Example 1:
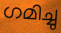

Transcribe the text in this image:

ഗമിച്ചു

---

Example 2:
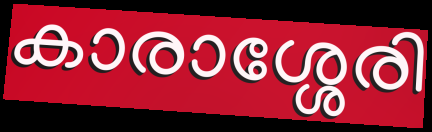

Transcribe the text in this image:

കാരാശ്ശേരി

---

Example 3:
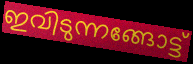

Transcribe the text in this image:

ഇവിടുന്നങ്ങോട്ട്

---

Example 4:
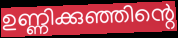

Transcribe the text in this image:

ഉണ്ണിക്കുഞ്ഞിന്റെ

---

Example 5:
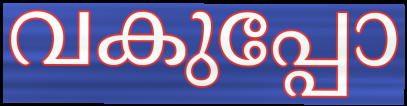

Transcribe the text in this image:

വകുപ്പോ